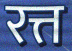
रत्त